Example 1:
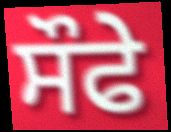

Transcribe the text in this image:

ਸੌਫੇ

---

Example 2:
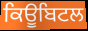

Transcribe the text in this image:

ਕਿਊਬਿਟਲ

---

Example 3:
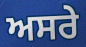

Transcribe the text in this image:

ਅਸਰੇ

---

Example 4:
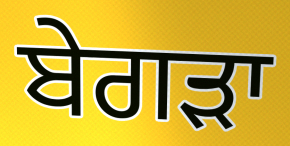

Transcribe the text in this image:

ਬੇਗੜਾ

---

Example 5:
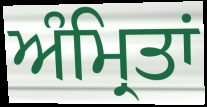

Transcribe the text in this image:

ਅੰਮ੍ਰਿਤਾਂ